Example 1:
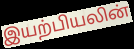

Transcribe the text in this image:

இயற்பியலின்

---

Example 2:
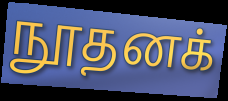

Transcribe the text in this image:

நூதனக்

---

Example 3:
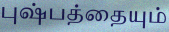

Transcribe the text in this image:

புஷ்பத்தையும்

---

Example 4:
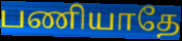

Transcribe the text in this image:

பணியாதே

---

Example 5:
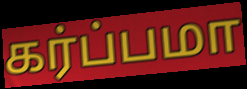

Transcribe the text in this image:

கர்ப்பமா